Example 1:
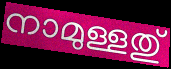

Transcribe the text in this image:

നാമുള്ളതു്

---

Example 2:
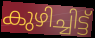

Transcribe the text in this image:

കുഴിച്ചിട്ട്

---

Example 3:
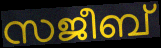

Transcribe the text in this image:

സജീബ്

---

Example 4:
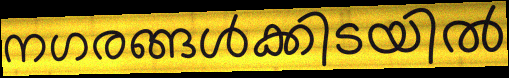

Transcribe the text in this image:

നഗരങ്ങൾക്കിടയിൽ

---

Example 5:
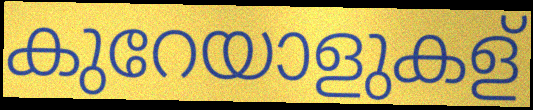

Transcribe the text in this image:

കുറേയാളുകള്